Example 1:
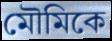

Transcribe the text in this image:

মৌমিকে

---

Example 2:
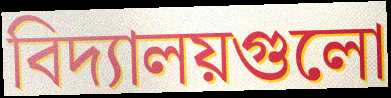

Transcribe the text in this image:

বিদ্যালয়গুলো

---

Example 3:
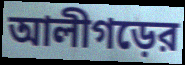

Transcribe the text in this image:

আলীগড়ের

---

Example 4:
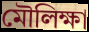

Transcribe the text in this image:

মৌলিক্ষা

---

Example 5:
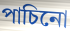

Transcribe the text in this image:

পাচিনো